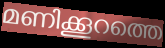
മണിക്കൂറത്തെ